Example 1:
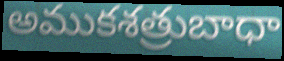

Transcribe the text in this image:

అముకశత్రుబాధా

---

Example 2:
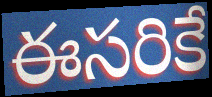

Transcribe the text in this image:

ఈసరికే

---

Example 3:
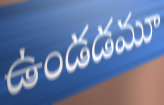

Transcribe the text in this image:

ఉండడమూ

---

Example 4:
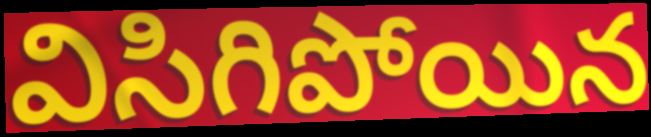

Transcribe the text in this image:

విసిగిపోయిన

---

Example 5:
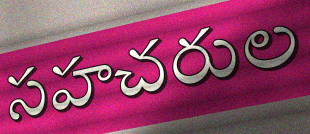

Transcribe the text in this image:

సహచరుల